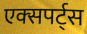
एक्‍सपर्ट्स